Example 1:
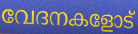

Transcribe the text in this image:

വേദനകളോട്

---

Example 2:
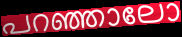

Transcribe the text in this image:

പറഞ്ഞാലോ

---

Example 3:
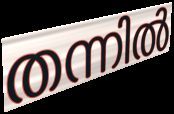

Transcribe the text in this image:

തന്നിൽ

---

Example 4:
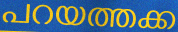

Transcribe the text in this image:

പറയത്തക്ക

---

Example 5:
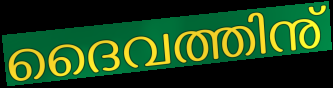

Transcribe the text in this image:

ദൈവത്തിനു്